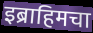
इब्राहिमचा